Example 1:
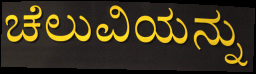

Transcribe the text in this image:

ಚೆಲುವಿಯನ್ನು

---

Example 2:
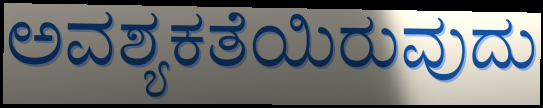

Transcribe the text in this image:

ಅವಶ್ಯಕತೆಯಿರುವುದು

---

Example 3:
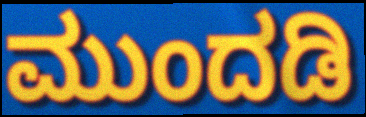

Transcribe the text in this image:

ಮುಂದಡಿ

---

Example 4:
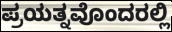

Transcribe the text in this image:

ಪ್ರಯತ್ನವೊಂದರಲ್ಲಿ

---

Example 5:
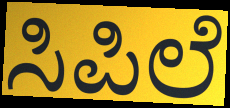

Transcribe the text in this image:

ಸಿಪಿಲೆ